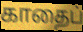
காதைப்